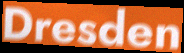
Dresden